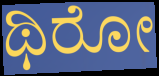
ಥಿರೋ